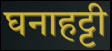
घनाहट्टी